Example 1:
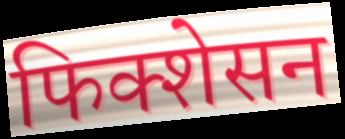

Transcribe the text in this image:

फिक्शेसन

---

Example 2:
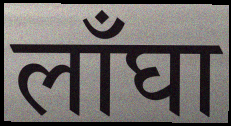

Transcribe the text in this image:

लाँघा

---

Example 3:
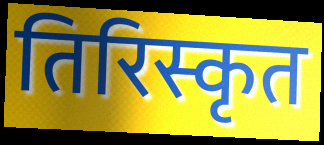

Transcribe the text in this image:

तिरिस्कृत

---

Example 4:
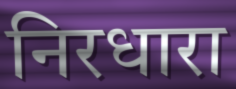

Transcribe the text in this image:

निरधारा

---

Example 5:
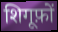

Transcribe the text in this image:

शिगूफ़ों